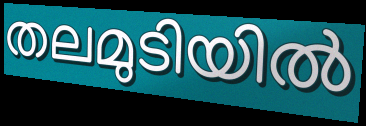
തലമുടിയിൽ